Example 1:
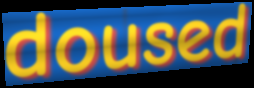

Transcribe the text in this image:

doused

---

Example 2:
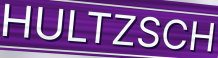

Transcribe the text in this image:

HULTZSCH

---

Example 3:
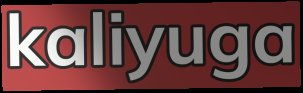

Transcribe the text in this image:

kaliyuga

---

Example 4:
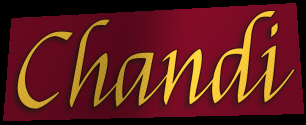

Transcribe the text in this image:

Chandi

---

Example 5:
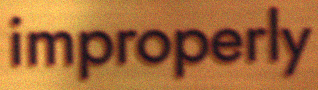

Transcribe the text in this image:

improperly